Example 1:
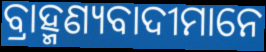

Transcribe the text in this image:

ବ୍ରାହ୍ମଣ୍ୟବାଦୀମାନେ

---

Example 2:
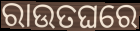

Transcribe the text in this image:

ରାଉତଘରେ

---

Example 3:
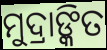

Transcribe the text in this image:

ମୁଦ୍ରାଙ୍କିତ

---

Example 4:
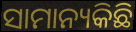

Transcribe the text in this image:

ସାମାନ୍ୟକିଛି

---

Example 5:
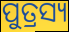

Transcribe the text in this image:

ପୁତ୍ରସ୍ୟ